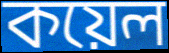
কয়েল